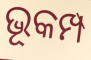
ଭୂକମ୍ପ